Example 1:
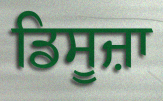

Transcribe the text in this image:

ਡਿਸੂਜ਼ਾ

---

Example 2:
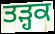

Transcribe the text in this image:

ਤੜ੍ਹਕ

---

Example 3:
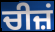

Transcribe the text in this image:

ਚੀਜ਼ਂ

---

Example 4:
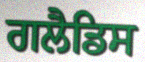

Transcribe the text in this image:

ਗਲੈਡਿਸ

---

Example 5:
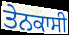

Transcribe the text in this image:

ਤੇਨਕਾਸੀ